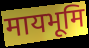
मायभूमि